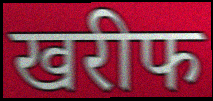
खरीफ